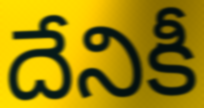
దేనికీ